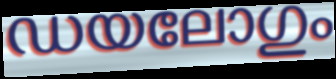
ഡയലോഗും